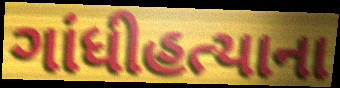
ગાંધીહત્યાના